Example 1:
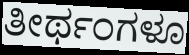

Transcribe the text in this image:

ತೀರ್ಥಂಗಳೂ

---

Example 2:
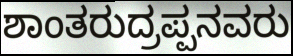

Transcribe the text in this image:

ಶಾಂತರುದ್ರಪ್ಪನವರು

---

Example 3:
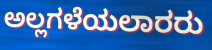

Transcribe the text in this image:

ಅಲ್ಲಗಳೆಯಲಾರರು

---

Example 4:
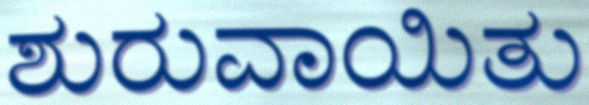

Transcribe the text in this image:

ಶುರುವಾಯಿತು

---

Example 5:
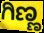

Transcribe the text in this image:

ಗಿಣ್ಣ